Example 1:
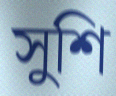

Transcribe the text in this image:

সুশি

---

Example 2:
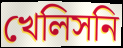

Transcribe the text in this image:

খেলিসনি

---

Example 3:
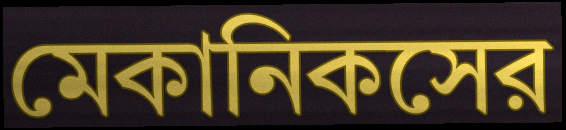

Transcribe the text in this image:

মেকানিকসের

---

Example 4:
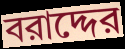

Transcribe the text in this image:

বরাদ্দের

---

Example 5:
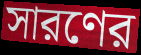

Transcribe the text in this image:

সারণের